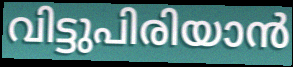
വിട്ടുപിരിയാൻ